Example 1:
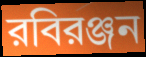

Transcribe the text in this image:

রবিরঞ্জন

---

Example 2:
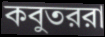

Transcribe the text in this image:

কবুতররা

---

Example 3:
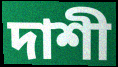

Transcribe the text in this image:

দাশী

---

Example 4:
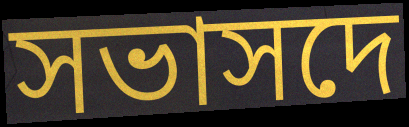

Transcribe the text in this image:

সভাসদে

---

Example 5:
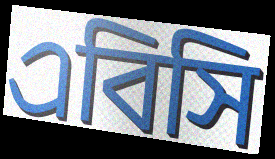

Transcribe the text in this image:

এবিসি